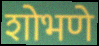
शोभणे